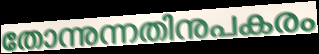
തോന്നുന്നതിനുപകരം